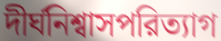
দীর্ঘনিশ্বাসপরিত্যাগ